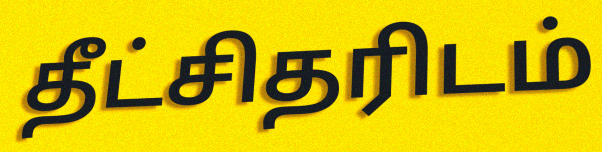
தீட்சிதரிடம்